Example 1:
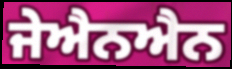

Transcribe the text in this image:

ਜੇਐਨਐਨ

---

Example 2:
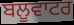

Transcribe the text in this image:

ਬਲੂਵਾਟਰ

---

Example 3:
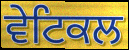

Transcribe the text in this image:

ਵੇਟਿਕਲ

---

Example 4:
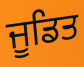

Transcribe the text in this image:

ਜੂਡਿਤ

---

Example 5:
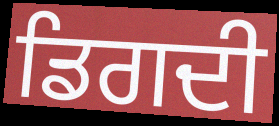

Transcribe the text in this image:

ਡਿਗਦੀ